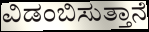
ವಿಡಂಬಿಸುತ್ತಾನೆ